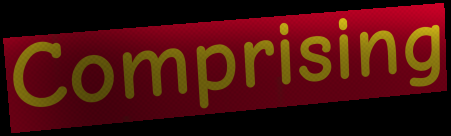
Comprising